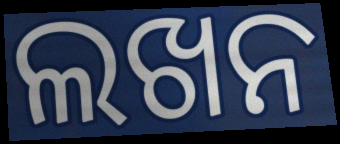
ଲଖନ